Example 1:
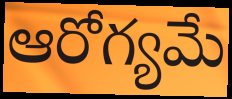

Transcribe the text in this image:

ఆరోగ్యమే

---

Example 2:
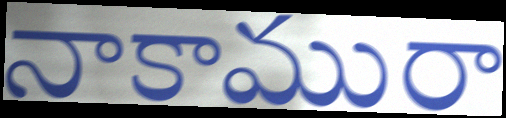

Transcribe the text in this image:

నాకామురా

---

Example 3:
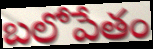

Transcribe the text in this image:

బలోపేతం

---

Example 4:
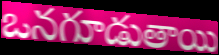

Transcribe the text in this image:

ఒనగూడుతాయి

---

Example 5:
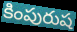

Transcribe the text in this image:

కింపురుష